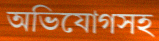
অভিযোগসহ